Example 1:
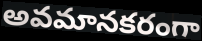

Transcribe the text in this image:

అవమానకరంగా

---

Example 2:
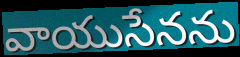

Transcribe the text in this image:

వాయుసేనను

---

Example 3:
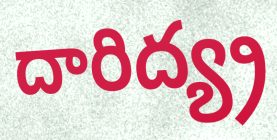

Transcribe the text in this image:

దారిద్య్ర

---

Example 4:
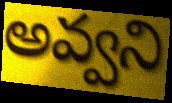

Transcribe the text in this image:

అవ్వని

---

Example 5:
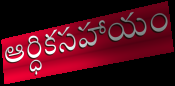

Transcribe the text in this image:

ఆర్ధికసహాయం